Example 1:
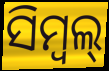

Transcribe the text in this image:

ସିମ୍ବଲ୍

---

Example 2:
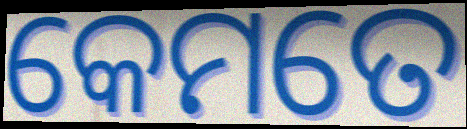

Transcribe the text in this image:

କେମତେ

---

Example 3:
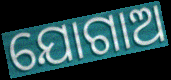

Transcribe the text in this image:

ଯୋଗାଅ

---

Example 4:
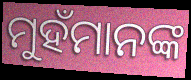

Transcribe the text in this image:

ମୁହଁମାନଙ୍କ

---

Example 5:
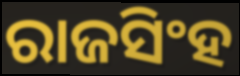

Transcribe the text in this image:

ରାଜସିଂହ